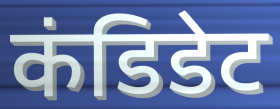
कंडिडेट